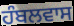
ਹੰਬਲਵਾਸ